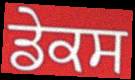
ਡੇਕਸ